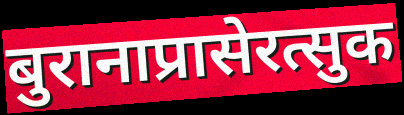
बुरानाप्रासेरत्सुक